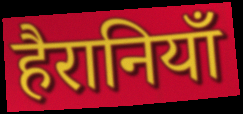
हैरानियाँ